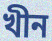
খীন